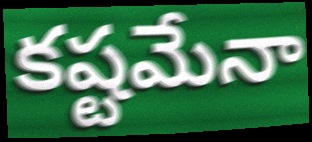
కష్టమేనా